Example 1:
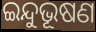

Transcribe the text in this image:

ଇନ୍ଦୁଭୂଷଣ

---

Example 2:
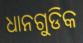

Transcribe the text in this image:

ଧାନଗୁଡିକ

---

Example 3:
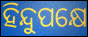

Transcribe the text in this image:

ହିନ୍ଦୁପକ୍ଷେ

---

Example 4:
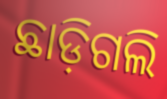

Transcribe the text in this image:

ଛାଡ଼ିଗଲି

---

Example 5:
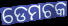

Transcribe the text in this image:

ଡେମଚକ